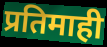
प्रतिमाही